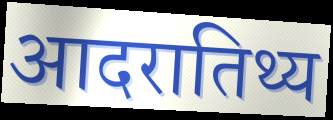
आदरातिथ्य